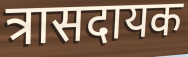
त्रासदायक